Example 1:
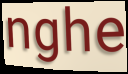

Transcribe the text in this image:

nghe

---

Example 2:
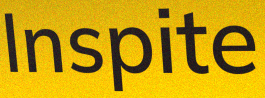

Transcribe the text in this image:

Inspite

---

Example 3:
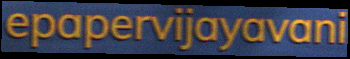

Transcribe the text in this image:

epapervijayavani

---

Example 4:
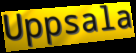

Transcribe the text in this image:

Uppsala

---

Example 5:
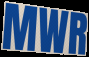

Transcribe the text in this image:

MWR